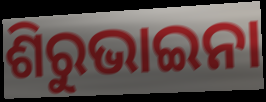
ଶିରୁଭାଇନା